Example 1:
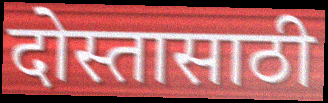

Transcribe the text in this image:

दोस्तासाठी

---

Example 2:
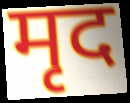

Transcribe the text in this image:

मृद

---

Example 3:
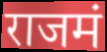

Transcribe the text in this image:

राजमं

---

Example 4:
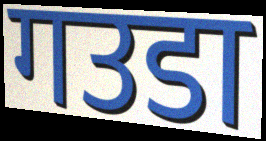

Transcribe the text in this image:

गउडा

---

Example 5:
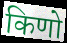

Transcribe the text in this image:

किणो